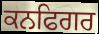
ਕਨਫਿਗਰ